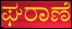
ಘರಾಣೆ